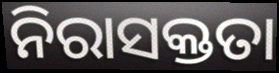
ନିରାସକ୍ତତା